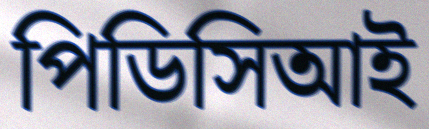
পিডিসিআই